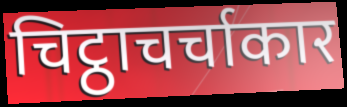
चिट्ठाचर्चाकार